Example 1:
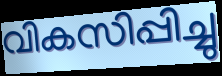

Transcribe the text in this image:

വികസിപ്പിച്ചു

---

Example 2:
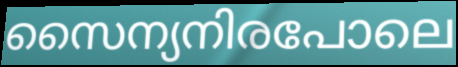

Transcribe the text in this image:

സൈന്യനിരപോലെ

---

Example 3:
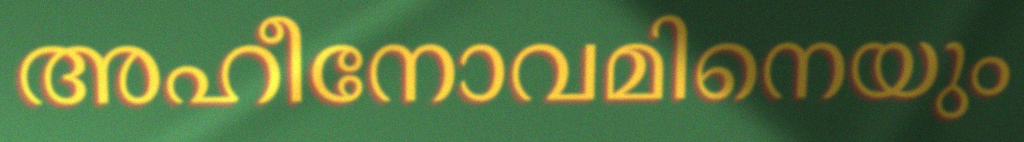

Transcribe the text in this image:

അഹീനോവമിനെയും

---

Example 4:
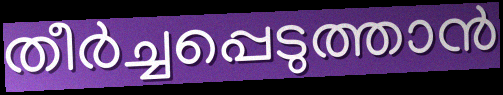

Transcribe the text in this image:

തീർച്ചപ്പെടുത്താൻ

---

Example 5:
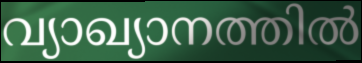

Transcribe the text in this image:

വ്യാഖ്യാനത്തിൽ